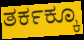
ತರ್ಕಕ್ಕೂ